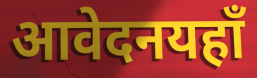
आवेदनयहाँ